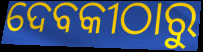
ଦେବକୀଠାରୁ